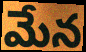
మేన